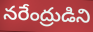
నరేంద్రుడిని